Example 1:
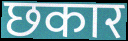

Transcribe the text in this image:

छकार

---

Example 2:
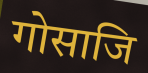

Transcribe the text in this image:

गोसाजि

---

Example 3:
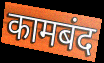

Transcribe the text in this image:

कामबंद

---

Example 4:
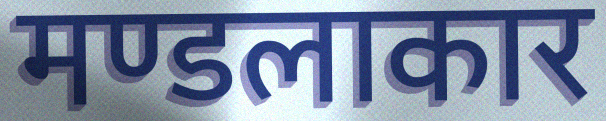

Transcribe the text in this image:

मण्डलाकार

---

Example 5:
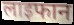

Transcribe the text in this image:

लाइफान